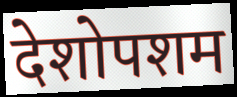
देशोपशम